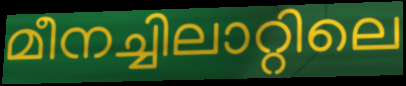
മീനച്ചിലാറ്റിലെ